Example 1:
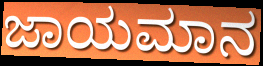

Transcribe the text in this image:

ಜಾಯಮಾನ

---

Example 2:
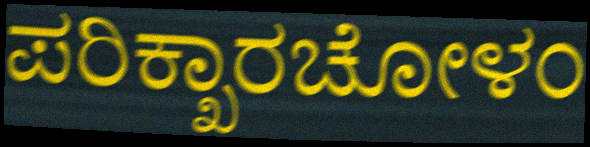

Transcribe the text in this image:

ಪರಿಕ್ಖಾರಚೋಳಂ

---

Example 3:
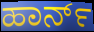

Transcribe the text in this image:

ಹಾರ್ನ್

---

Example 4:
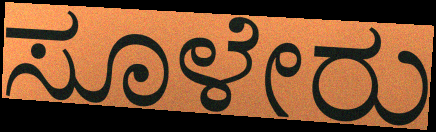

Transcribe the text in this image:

ಸೂಳೇರು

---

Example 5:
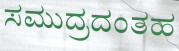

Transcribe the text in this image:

ಸಮುದ್ರದಂತಹ